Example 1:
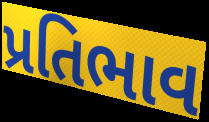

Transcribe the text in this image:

પ્રતિભાવ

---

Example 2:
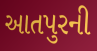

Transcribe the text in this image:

આતપુરની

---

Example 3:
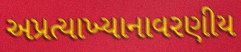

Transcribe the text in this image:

અપ્રત્યાખ્યાનાવરણીય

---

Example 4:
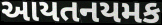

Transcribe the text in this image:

આયતનયમક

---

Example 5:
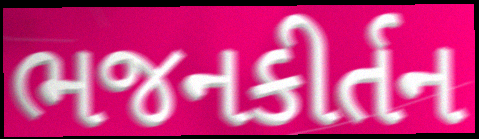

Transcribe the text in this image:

ભજનકીર્તન